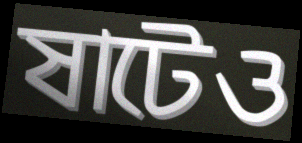
ষাটেও